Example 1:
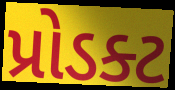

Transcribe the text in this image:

પ્રોડક્ટ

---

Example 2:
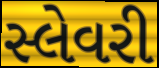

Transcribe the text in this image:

સ્લેવરી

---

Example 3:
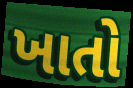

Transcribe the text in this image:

ખાતો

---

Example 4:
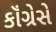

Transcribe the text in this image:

કૉંગ્રેસે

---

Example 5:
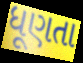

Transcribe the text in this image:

ધૂણતા